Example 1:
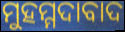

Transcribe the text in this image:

ମୁହମ୍ମଦାବାଦ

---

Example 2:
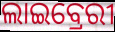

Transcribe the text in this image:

ଲାଇବ୍ରେରୀ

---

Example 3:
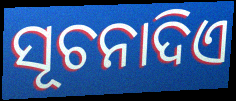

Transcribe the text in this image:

ସୂଚନାଦିଏ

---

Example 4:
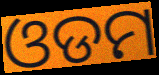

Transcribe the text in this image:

ଓଡମ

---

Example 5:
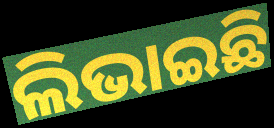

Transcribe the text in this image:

ଲିଭାଇଛି